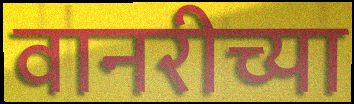
वानरीच्या